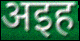
अइह